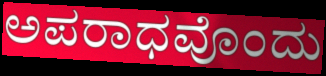
ಅಪರಾಧವೊಂದು